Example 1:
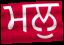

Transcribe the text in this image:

ਮਲੁ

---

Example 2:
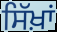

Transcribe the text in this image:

ਸਿੱਖ਼ਾਂ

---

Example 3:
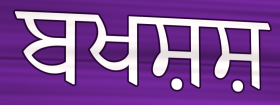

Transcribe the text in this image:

ਬਖਸ਼ਸ਼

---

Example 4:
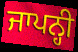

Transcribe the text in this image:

ਜਾਪਨ੍ਹੀ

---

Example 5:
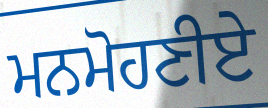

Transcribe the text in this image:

ਮਨਮੋਹਣੀਏ